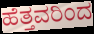
ಹೆತ್ತವರಿಂದ